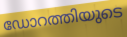
ഡോറത്തിയുടെ